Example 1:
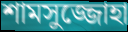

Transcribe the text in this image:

শামসুজ্জোহা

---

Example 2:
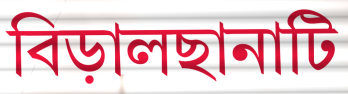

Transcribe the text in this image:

বিড়ালছানাটি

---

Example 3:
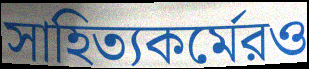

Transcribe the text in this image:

সাহিত্যকর্মেরও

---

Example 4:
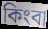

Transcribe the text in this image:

কিংবা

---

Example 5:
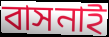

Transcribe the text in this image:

বাসনাই